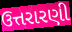
ઉત્તરારણી